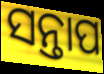
ସନ୍ତାପ